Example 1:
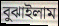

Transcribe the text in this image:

বুঝাইলাম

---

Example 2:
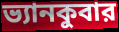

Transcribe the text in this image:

ভ্যানকুবার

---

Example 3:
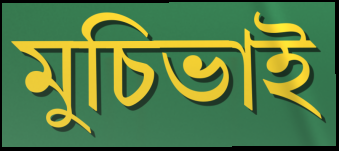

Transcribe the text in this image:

মুচিভাই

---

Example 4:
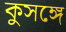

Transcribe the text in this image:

কুসঙ্গে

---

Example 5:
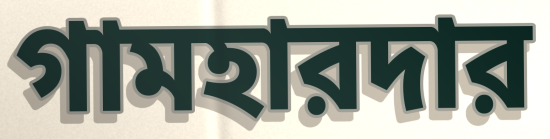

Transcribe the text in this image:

গামহারদার